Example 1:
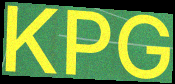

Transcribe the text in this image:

KPG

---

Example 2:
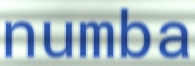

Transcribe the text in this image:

numba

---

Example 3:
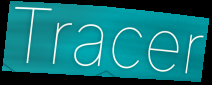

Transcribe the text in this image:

Tracer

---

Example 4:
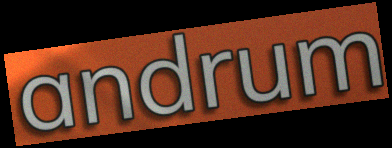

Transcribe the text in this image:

andrum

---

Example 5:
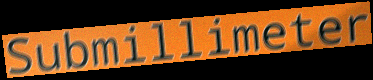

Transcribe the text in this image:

Submillimeter